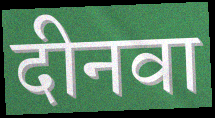
दीनवा